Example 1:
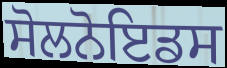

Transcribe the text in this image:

ਸੋਲਨੋਇਡਸ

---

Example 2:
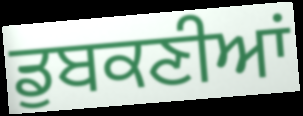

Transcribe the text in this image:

ਡੁਬਕਣੀਆਂ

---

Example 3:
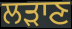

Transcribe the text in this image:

ਲੜਾਣ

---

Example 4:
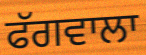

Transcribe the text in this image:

ਫੱਗਵਾਲਾ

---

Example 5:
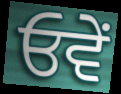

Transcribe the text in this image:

ਓਵੇਂ